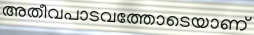
അതീവപാടവത്തോടെയാണ്